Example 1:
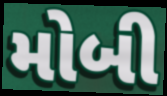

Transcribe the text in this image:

મોબી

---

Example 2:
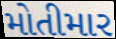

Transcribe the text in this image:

મોતીમાર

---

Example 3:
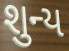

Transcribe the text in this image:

શુન્ય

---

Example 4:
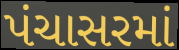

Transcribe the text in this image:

પંચાસરમાં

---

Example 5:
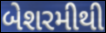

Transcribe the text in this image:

બેશરમીથી